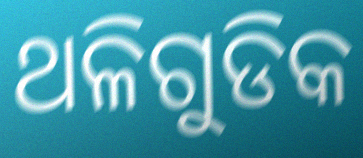
ଥଳିଗୁଡିକ